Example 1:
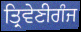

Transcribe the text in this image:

ਤ੍ਰਿਵੇਣੀਗੰਜ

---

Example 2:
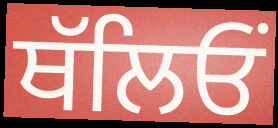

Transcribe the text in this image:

ਥੱਲਿਓਂ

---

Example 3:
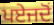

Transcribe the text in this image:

ਪਏਜਦੋਂ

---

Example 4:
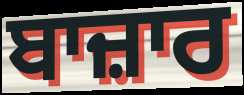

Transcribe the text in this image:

ਬਾਜ਼ਾਰ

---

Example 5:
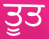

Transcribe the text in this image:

ਤੂਤ